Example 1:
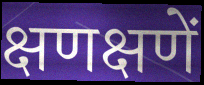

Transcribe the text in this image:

क्षणक्षणें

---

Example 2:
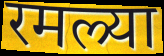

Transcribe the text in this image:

रमल्या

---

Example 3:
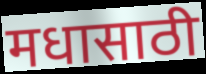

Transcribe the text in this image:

मधासाठी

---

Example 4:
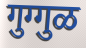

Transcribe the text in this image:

गुग्गुळ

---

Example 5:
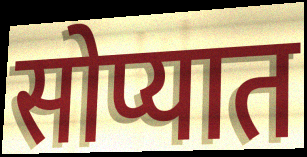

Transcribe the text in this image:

सोप्यात